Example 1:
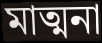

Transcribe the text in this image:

মাত্মনা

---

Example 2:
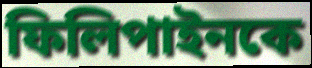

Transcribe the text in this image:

ফিলিপাইনকে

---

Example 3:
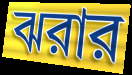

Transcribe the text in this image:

ঝরার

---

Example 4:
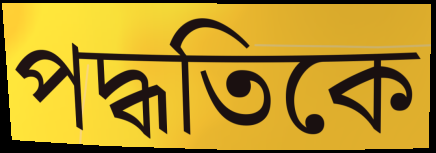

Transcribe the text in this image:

পদ্ধতিকে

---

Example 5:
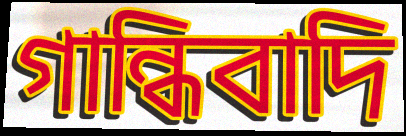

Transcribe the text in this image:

গান্ধিবাদি